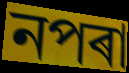
নপৰা